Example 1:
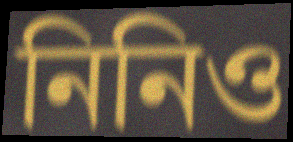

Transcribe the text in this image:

নিনিও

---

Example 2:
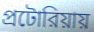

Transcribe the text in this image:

প্রটোরিয়ায়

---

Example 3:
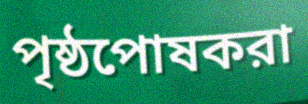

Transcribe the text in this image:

পৃষ্ঠপোষকরা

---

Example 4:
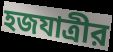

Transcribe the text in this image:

হজযাত্রীর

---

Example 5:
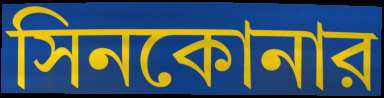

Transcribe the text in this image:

সিনকোনার